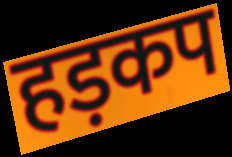
हड़कप